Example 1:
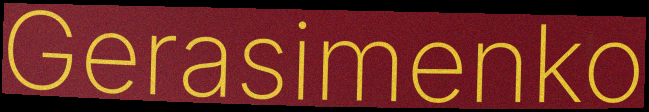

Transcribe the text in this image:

Gerasimenko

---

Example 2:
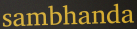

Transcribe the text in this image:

sambhanda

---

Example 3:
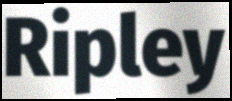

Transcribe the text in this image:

Ripley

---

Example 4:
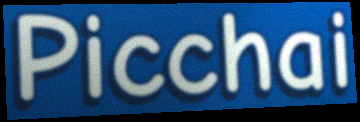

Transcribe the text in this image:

Picchai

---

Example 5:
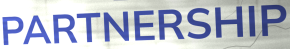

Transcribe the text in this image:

PARTNERSHIP